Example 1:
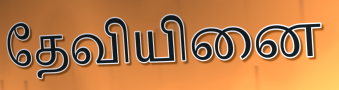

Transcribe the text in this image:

தேவியினை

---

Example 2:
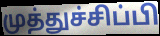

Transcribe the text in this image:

முத்துச்சிப்பி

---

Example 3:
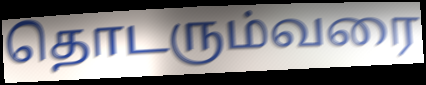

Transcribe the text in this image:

தொடரும்வரை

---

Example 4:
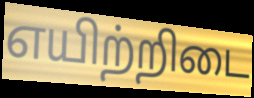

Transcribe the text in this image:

எயிற்றிடை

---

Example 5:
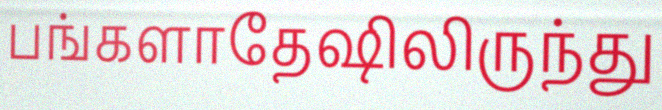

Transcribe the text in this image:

பங்களாதேஷிலிருந்து